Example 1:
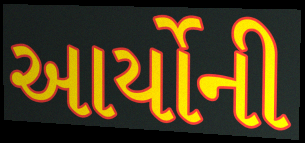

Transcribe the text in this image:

આર્યોની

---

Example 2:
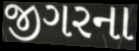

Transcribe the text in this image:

જીગરના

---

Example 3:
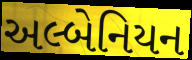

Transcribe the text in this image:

અલ્બેનિયન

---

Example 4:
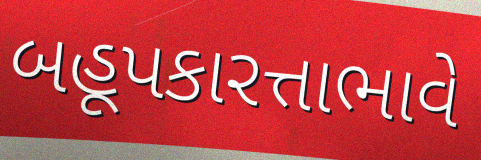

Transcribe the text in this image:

બહૂપકારત્તાભાવે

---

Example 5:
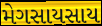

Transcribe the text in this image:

મેગસાયસાય